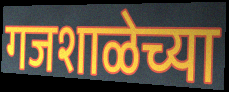
गजशाळेच्या